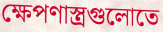
ক্ষেপণাস্ত্রগুলোতে